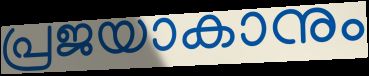
പ്രജയാകാനും